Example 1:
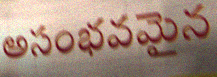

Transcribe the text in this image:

అసంభవమైన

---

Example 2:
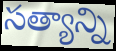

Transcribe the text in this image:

సత్యాన్ని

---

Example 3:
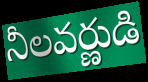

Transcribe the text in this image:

నీలవర్ణుడి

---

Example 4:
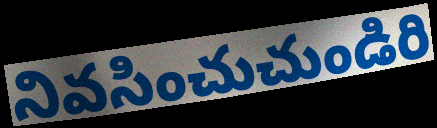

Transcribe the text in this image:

నివసించుచుండిరి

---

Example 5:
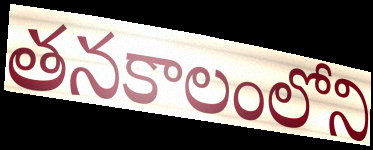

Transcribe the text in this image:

తనకాలంలోని